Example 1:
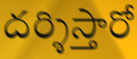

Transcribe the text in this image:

దర్శిస్తారో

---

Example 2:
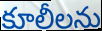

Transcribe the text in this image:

కూలీలను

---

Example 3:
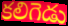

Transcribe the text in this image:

కలిగెడు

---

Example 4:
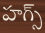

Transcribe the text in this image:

హగ్స్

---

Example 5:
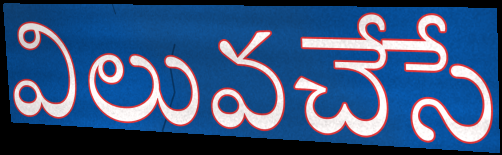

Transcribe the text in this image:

విలువచేసే